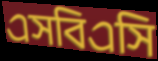
এসবিএসি